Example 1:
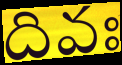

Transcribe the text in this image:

దివః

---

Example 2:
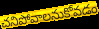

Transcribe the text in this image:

చనిపోవాలనుకోవడం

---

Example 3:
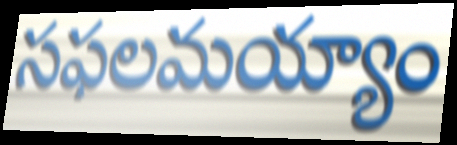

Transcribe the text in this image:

సఫలమయ్యాం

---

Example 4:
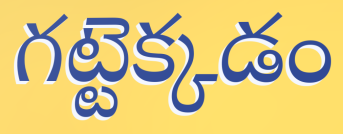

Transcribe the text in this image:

గట్టెక్కడం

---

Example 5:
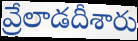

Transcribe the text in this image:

వ్రేలాడదీశారు